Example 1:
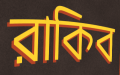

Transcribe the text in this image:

রাকিব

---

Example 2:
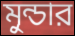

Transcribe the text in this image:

মুন্ডার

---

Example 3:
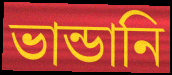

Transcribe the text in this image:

ভান্ডানি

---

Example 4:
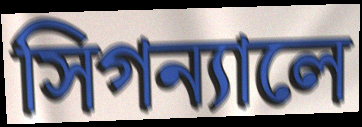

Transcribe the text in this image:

সিগন্যালে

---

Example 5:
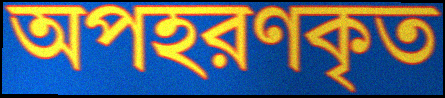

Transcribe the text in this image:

অপহরণকৃত